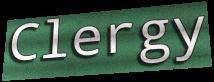
Clergy